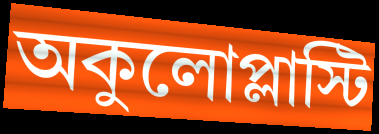
অকুলোপ্লাস্টি